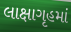
લાક્ષાગૃહમાં